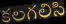
కలగలిసి